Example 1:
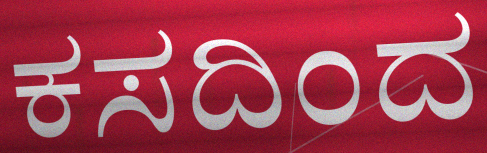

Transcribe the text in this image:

ಕಸದಿಂದ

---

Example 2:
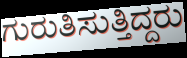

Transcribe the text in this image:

ಗುರುತಿಸುತ್ತಿದ್ದರು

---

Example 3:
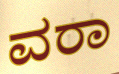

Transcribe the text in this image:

ವರಾ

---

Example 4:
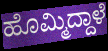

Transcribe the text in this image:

ಹೊಮ್ಮಿದ್ದಾಳೆ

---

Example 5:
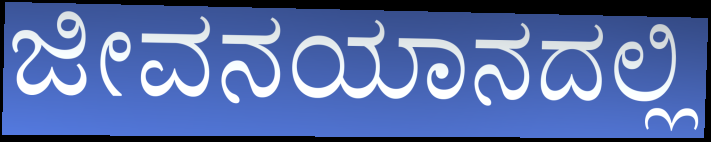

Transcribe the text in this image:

ಜೀವನಯಾನದಲ್ಲಿ